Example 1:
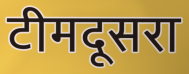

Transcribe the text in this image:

टीमदूसरा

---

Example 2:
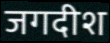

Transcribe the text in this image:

जगदीश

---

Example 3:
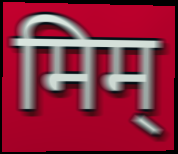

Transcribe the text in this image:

मिम्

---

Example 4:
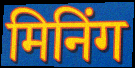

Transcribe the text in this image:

मिनिंग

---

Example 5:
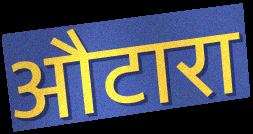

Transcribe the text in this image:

औटारा